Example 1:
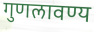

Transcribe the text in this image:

गुणलावण्य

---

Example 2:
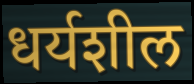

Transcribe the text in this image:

धर्यशील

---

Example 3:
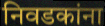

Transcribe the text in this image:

निवडकांना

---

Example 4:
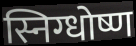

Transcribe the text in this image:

स्निग्धोष्ण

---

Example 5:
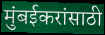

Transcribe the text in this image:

मुंबईकरांसाठी